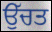
ਉੱਚਤ